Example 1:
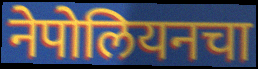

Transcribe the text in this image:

नेपोलियनचा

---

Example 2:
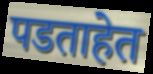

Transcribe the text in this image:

पडताहेत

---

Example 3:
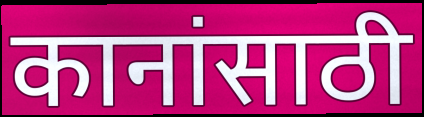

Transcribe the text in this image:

कानांसाठी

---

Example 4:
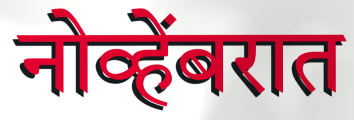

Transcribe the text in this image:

नोव्हेंबरात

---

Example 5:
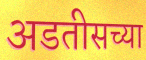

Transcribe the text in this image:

अडतीसच्या